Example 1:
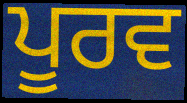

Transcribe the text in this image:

ਪੂਰਵ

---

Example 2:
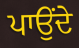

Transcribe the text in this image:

ਪਾਉਂਦੇ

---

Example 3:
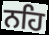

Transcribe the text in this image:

ਨਹਿ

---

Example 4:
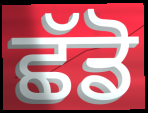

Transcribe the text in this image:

ਛੱਡੋ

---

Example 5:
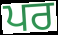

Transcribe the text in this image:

ਪਰ